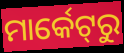
ମାର୍କେଟ୍‌ରୁ